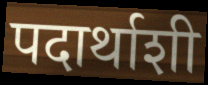
पदार्थाशी